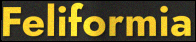
Feliformia